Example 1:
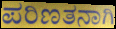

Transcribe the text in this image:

ಪರಿಣತನಾಗಿ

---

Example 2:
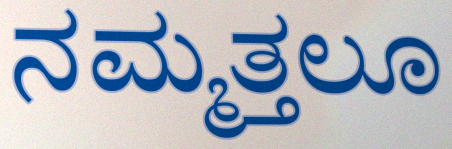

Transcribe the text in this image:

ನಮ್ಮತ್ತಲೂ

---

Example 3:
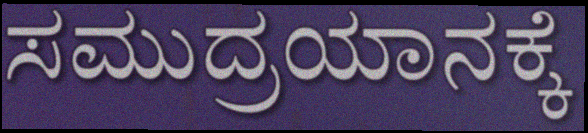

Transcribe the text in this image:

ಸಮುದ್ರಯಾನಕ್ಕೆ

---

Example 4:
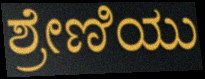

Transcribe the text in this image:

ಶ್ರೇಣಿಯು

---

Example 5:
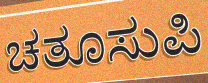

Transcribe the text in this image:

ಚತೂಸುಪಿ